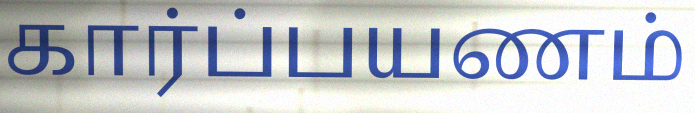
கார்ப்பயணம்